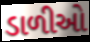
ડાળીઓ